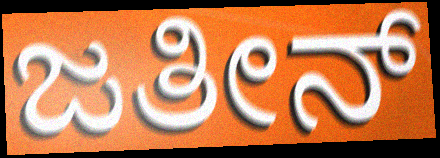
ಜತೀನ್